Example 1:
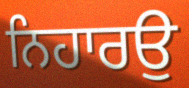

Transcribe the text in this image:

ਨਿਹਾਰਉ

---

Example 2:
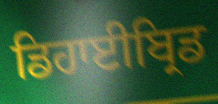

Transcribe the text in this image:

ਡਿਹਾਈਬ੍ਰਿਡ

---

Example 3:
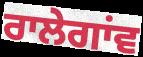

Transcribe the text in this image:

ਰਾਲੇਗਾਂਵ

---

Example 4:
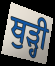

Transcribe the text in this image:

ਥੁੜ੍ਹੀ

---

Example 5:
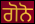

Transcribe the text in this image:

ਗੋਨੋ